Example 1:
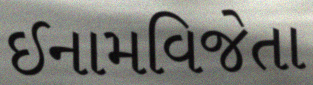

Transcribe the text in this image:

ઈનામવિજેતા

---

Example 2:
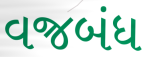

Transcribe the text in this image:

વજ્રબંધ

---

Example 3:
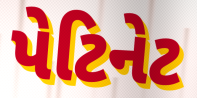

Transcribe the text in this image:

પેટિનેટ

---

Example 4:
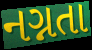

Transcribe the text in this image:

નગ્નતા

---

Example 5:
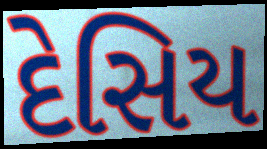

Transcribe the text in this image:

દેસિય